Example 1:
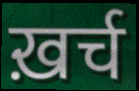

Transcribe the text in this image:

ख़र्च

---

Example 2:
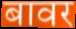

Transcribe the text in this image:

बावर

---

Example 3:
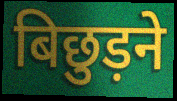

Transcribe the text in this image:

बिछुड़ने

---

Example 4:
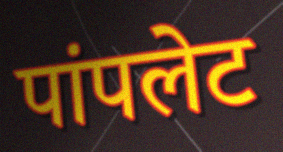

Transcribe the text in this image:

पांपलेट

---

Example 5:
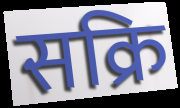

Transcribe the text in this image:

सक्रि